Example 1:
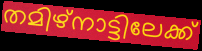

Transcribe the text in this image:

തമിഴ്നാട്ടിലേക്ക്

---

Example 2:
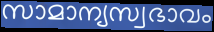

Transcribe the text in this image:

സാമാന്യസ്വഭാവം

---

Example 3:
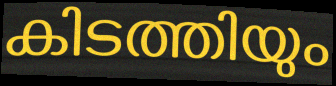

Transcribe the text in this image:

കിടത്തിയും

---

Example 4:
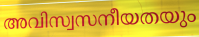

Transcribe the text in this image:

അവിസ്വസനീയതയും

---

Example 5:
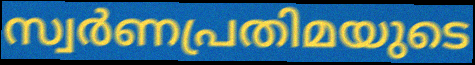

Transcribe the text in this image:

സ്വർണപ്രതിമയുടെ